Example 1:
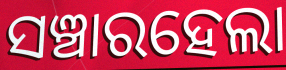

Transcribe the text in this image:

ସଞ୍ଚାରହେଲା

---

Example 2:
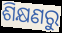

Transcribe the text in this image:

ଶିକ୍ଷଣରୁ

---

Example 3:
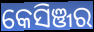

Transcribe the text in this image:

କେସିଞ୍ଜର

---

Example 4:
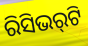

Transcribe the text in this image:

ରିସିଭର୍‌ଟି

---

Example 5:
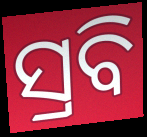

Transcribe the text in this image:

ସ୍ରବି